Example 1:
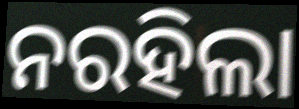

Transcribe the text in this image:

ନରହିଲା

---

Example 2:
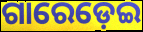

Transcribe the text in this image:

ଗାରେଡ଼େଇ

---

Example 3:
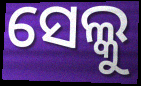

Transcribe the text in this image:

ସେଲ୍କୁ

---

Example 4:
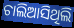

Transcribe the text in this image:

ଚାଲିଆସିଥିଲି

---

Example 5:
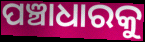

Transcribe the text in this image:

ପଞ୍ଚାଧାରକୁ